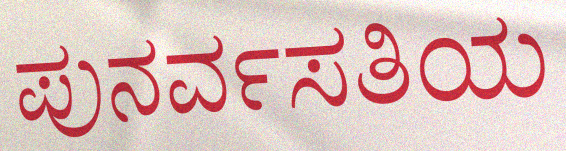
ಪುನರ್ವಸತಿಯ